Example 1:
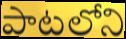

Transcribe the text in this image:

పాటలోని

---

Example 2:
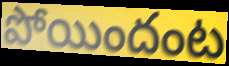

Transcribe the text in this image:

పోయిందంట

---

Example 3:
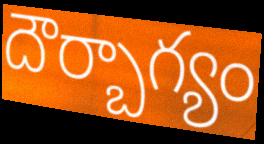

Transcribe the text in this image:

దౌర్బాగ్యం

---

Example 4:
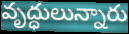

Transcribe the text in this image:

వృద్ధులున్నారు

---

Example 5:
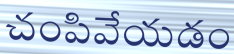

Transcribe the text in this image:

చంపివేయడం